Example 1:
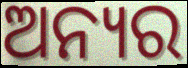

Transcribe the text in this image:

ଅନ୍ୟର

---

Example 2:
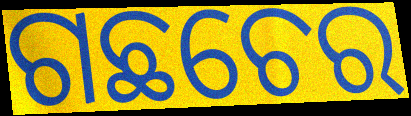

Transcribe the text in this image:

ଗଛଚେର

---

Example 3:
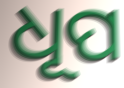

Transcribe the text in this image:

ଧୂପ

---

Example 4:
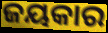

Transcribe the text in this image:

ଜୟକାର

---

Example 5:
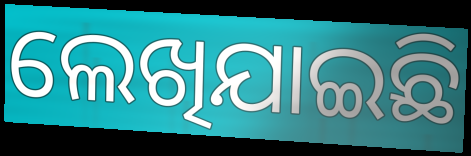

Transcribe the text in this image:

ଲେଖିଯାଇଛି